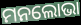
ମନଲୋଭା